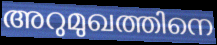
അറുമുഖത്തിനെ